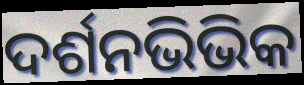
ଦର୍ଶନଭିଭିକ